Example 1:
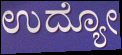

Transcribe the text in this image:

ಉದ್ಯೋ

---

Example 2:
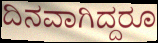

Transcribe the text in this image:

ದಿನವಾಗಿದ್ದರೂ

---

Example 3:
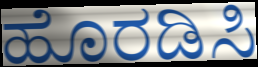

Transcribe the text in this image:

ಹೊರಡಿಸಿ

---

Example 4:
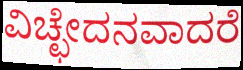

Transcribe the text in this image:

ವಿಚ್ಛೇದನವಾದರೆ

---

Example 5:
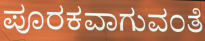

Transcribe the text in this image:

ಪೂರಕವಾಗುವಂತೆ